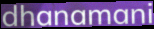
dhanamani